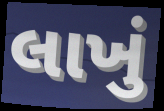
લાખું